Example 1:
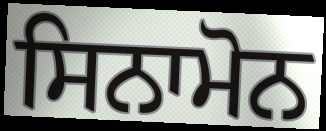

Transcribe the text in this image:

ਸਿਨਾਮੋਨ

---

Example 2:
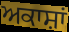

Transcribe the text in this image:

ਅਕਾਸ਼ਾਂ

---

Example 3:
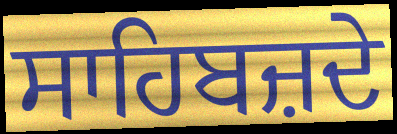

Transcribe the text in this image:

ਸਾਹਿਬਜ਼ਦੇ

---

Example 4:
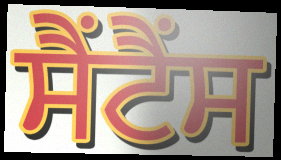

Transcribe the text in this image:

ਸੈਂਟੈਂਸ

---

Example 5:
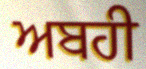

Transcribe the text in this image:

ਅਬਹੀ